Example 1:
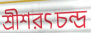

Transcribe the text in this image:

শ্রীশরৎচন্দ্র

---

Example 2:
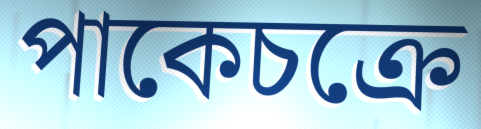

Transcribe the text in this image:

পাকেচক্রে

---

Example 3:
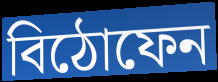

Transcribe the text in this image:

বিঠোফেন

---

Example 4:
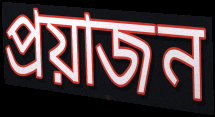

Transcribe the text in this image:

প্রয়াজন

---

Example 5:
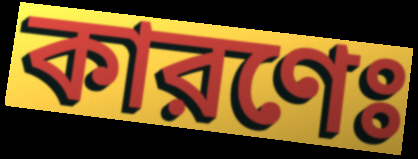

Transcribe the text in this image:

কারণেঃ